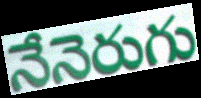
నేనెరుగు